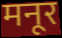
मनूर